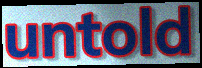
untold